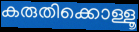
കരുതിക്കൊള്ളൂ